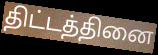
திட்டத்தினை